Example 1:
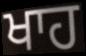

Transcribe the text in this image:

ਖਾਹ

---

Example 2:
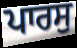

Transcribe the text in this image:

ਪਾਰਸੁ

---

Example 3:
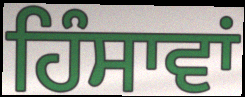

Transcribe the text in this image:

ਹਿੰਸਾਵਾਂ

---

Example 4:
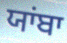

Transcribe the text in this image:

ਯਾਂਬਾ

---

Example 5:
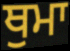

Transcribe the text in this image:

ਥੁਮਾ